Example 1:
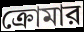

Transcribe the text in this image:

ক্রোমার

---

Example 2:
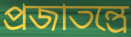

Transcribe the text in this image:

প্রজাতন্ত্রে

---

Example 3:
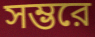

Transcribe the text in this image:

সম্ভরে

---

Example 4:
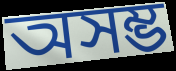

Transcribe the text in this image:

অসম্ভ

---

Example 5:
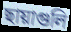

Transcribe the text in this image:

ছায়াগুলি